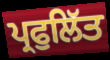
ਪ੍ਰਫੁਲਿੱਤ